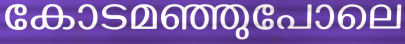
കോടമഞ്ഞുപോലെ